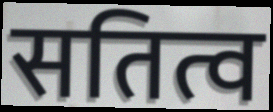
सतित्व